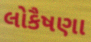
લોકૈષણા